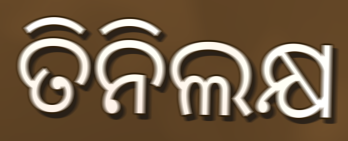
ତିନିଲକ୍ଷ